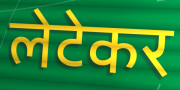
लेटेकर